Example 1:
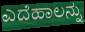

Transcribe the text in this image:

ಎದೆಹಾಲನ್ನು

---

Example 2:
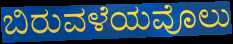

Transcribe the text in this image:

ಬಿರುವಳೆಯವೊಲು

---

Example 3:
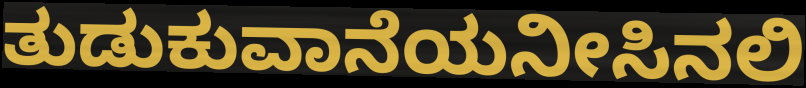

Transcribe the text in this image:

ತುಡುಕುವಾನೆಯನೀಸಿನಲಿ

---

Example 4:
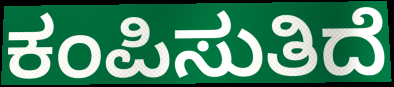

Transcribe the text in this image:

ಕಂಪಿಸುತಿದೆ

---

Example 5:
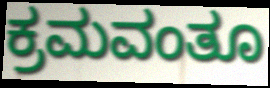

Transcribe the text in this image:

ಕ್ರಮವಂತೂ